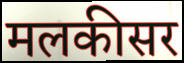
मलकीसर